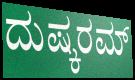
ದುಷ್ಕರಮ್